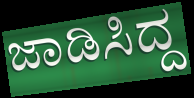
ಜಾಡಿಸಿದ್ದ